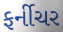
ફર્નીચર